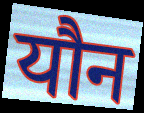
यौन